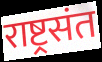
राष्ट्रसंत